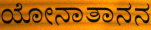
ಯೋನಾತಾನನ